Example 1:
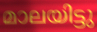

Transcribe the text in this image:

മാലയിട്ടു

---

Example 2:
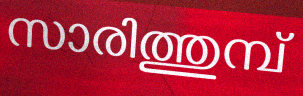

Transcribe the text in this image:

സാരിത്തുമ്പ്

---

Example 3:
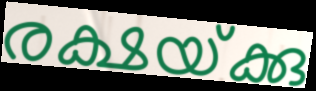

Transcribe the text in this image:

രക്ഷയ്‌ക്കു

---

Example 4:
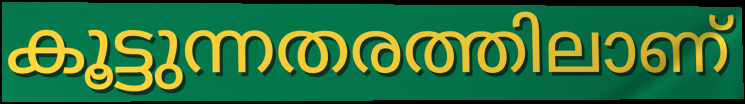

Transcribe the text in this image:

കൂട്ടുന്നതരത്തിലാണ്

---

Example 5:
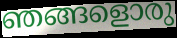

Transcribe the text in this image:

ഞങ്ങളൊരു